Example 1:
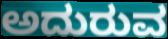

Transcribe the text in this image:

ಅದುರುವ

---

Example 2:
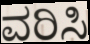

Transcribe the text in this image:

ವರಿಸಿ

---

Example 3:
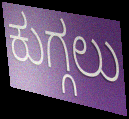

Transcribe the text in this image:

ಕುಗ್ಗಲು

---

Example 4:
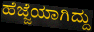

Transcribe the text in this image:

ಹೆಜ್ಜೆಯಾಗಿದ್ದು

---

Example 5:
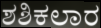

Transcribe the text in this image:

ಶಶಿಕಲಾರ